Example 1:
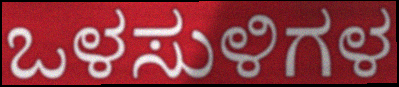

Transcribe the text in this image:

ಒಳಸುಳಿಗಳ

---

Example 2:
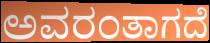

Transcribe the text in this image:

ಅವರಂತಾಗದೆ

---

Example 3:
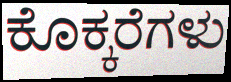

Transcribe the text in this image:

ಕೊಕ್ಕರೆಗಳು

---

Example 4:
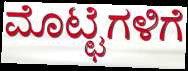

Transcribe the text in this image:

ಮೊಟ್ಟೆಗಳಿಗೆ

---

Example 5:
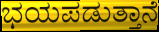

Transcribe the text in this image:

ಭಯಪಡುತ್ತಾನೆ